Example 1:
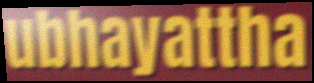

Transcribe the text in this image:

ubhayattha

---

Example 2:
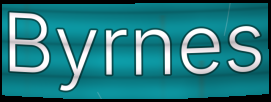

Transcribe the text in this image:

Byrnes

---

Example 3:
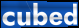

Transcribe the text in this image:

cubed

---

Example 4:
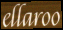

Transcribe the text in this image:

ellaroo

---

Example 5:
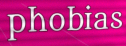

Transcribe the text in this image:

phobias